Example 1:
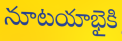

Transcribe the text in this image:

నూటయాభైకి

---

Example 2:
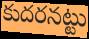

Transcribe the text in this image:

కుదరనట్టు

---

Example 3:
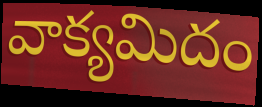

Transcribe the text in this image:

వాక్యమిదం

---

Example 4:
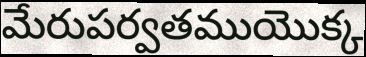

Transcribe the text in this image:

మేరుపర్వతముయొక్క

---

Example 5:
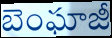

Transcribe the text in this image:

బెంఘాజీ